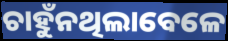
ଚାହୁଁନଥିଲାବେଳେ